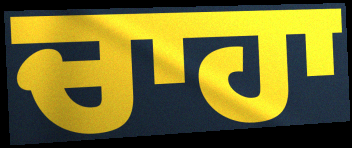
ਚਾਹਾ